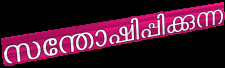
സന്തോഷിപ്പിക്കുന്ന